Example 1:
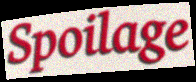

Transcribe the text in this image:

Spoilage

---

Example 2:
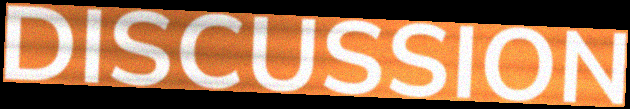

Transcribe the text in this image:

DISCUSSION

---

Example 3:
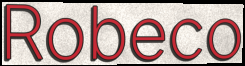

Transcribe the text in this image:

Robeco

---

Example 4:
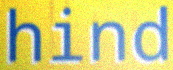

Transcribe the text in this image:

hind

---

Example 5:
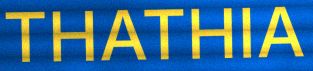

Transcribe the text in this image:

THATHIA